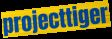
projecttiger